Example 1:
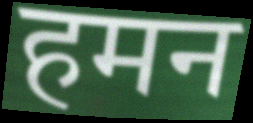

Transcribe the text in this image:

हमन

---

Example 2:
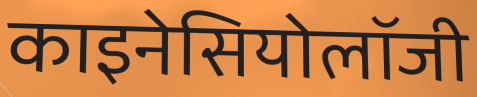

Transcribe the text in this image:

काइनेसियोलॉजी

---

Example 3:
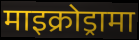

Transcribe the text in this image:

माइक्रोड्रामा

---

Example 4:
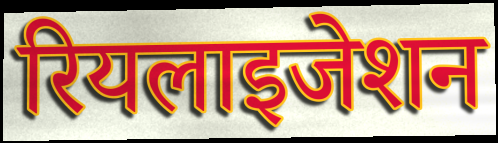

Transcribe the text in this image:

रियलाइजेशन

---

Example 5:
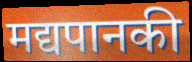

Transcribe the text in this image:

मद्यपानकी